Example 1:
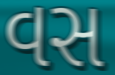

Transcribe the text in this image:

વસ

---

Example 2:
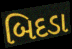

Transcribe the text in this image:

બિદડા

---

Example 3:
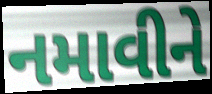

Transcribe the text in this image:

નમાવીને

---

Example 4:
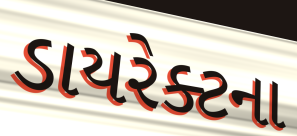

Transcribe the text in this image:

ડાયરેક્ટના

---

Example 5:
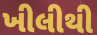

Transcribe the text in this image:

ખીલીથી